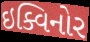
ઇક્વિનોર